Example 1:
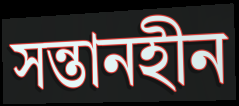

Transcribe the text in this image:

সন্তানহীন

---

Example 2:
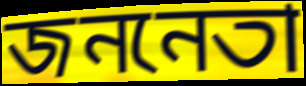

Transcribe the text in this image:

জননেতা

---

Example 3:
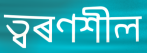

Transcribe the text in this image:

ত্বৰণশীল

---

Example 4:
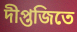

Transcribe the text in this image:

দীপ্তজিতে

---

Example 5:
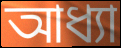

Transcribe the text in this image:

আধ্যা